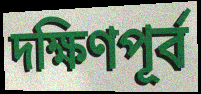
দক্ষিণপূর্ব